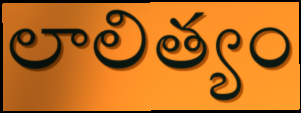
లాలిత్యం